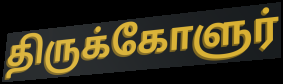
திருக்கோளுர்